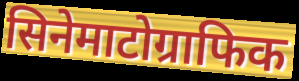
सिनेमाटोग्राफिक